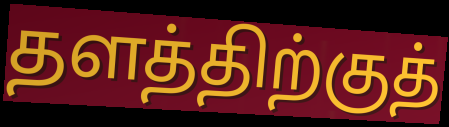
தளத்திற்குத்